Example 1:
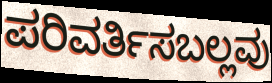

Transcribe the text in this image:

ಪರಿವರ್ತಿಸಬಲ್ಲವು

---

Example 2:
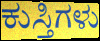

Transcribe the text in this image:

ಕುಸ್ತಿಗಳು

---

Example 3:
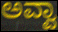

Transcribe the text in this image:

ಅವ್ವಾ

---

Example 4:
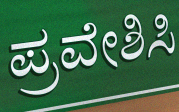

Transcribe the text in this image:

ಪ್ರವೇಶಿಸಿ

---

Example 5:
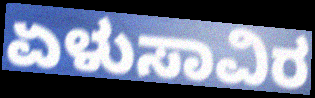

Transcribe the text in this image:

ಏಳುಸಾವಿರ